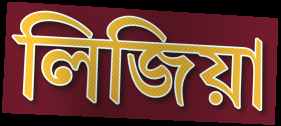
লিজিয়া